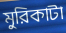
মুরিকাটা